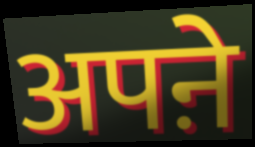
अपऩे